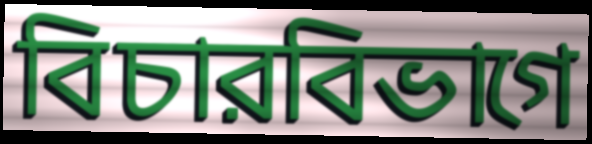
বিচারবিভাগে